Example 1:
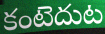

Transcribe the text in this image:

కంటెదుట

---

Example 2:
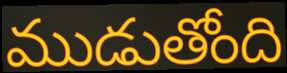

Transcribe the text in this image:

ముడుతోంది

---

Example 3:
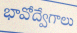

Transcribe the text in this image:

భావోద్వేగాలు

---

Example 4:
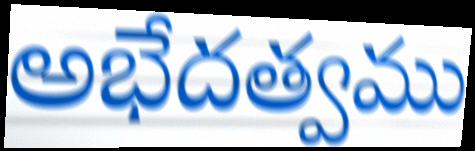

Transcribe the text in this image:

అభేదత్వము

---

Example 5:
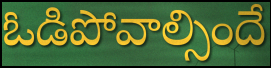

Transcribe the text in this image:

ఓడిపోవాల్సిందే